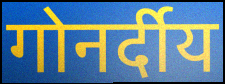
गोनर्दीय